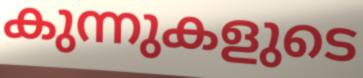
കുന്നുകളുടെ